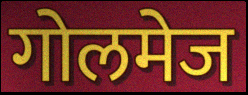
गोलमेज